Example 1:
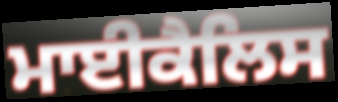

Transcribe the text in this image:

ਮਾਈਕੈਲਿਸ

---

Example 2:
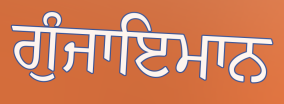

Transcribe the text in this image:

ਗੁੰਜਾਇਮਾਨ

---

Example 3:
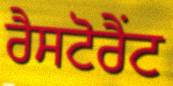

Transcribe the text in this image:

ਰੈਸਟੋਰੈਂਟ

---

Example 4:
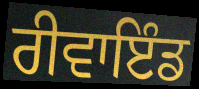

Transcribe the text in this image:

ਰੀਵਾਇੰਡ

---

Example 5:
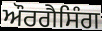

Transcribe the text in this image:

ਔਰਗੈਸਿੰਗ